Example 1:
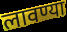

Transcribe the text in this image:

लावण्या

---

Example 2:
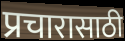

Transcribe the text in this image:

प्रचारासाठी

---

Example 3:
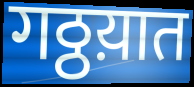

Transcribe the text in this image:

गठ्ठय़ात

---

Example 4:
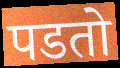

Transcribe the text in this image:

पडतो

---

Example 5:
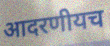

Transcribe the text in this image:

आदरणीयच